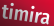
timira